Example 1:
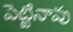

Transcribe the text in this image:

పెట్టినావు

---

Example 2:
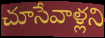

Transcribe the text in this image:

చూసేవాళ్లని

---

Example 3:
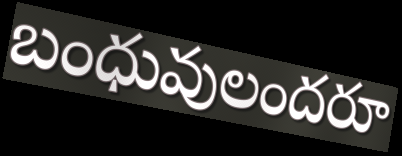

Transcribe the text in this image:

బంధువులందరూ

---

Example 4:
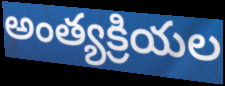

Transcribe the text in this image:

అంత్యక్రియల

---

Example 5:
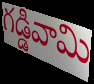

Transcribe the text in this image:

గడ్డివామి